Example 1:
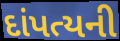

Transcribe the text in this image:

દાંપત્યની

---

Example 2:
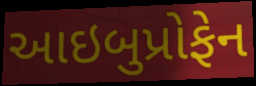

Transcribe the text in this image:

આઇબુપ્રોફેન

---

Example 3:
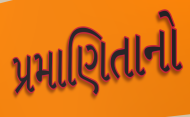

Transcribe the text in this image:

પ્રમાણિતાનો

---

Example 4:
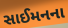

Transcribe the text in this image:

સાઈમનના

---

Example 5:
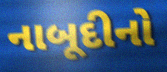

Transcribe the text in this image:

નાબૂદીનો